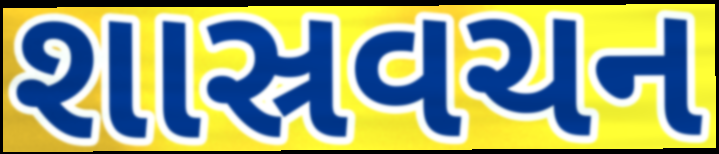
શાસ્રવચન